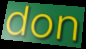
don